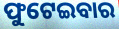
ଫୁଟେଇବାର